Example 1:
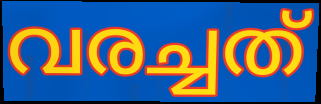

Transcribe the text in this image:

വരച്ചത്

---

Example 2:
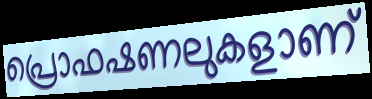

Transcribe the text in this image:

പ്രൊഫഷണലുകളാണ്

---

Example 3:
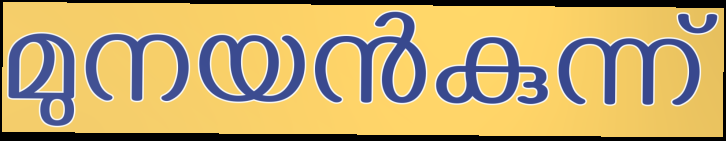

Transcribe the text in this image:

മുനയൻകുന്ന്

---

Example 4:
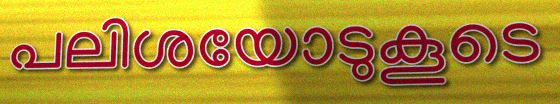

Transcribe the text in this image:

പലിശയോടുകൂടെ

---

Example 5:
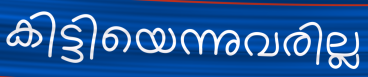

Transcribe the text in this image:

കിട്ടിയെന്നുവരില്ല